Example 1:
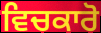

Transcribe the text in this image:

ਵਿਚਕਾਰੋ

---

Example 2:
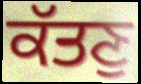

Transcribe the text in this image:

ਕੱਤਣੁ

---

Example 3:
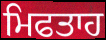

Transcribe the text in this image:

ਮਿਫਤਾਹ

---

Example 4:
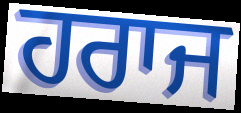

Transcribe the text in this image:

ਹਰਾਜ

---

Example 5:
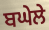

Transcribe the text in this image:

ਬਘੇਲੇ